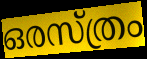
ഒരസ്ത്രം